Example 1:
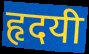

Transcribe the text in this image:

हृदयी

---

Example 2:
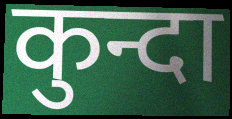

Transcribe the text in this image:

कुन्दा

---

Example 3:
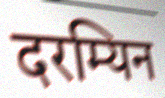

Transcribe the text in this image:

दरम्यिन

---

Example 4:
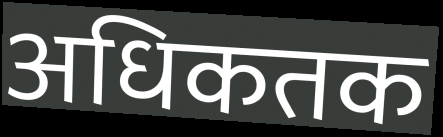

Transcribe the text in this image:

अधिकतक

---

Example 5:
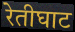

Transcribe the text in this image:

रेतीघाट